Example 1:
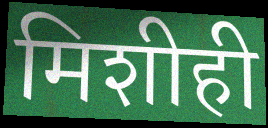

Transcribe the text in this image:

मिशीही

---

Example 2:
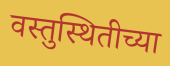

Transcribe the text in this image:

वस्तुस्थितीच्या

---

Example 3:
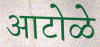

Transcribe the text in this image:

आटोळे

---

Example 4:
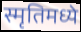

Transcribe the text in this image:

स्मृतिमध्ये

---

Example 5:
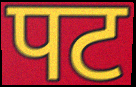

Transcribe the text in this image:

पट